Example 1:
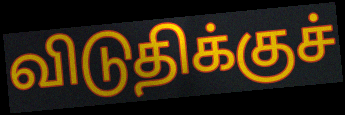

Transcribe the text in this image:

விடுதிக்குச்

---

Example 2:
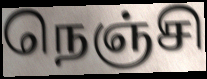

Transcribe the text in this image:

நெஞ்சி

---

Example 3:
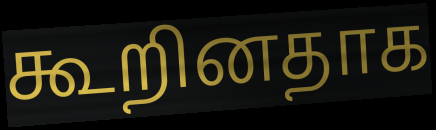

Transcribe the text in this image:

கூறினதாக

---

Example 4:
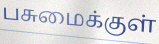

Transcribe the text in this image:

பசுமைக்குள்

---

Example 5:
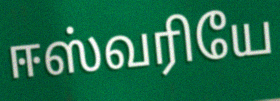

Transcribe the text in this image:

ஈஸ்வரியே